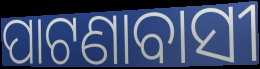
ପାଟଣାବାସୀ